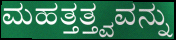
ಮಹತ್ತತ್ತ್ವವನ್ನು